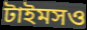
টাইমসও